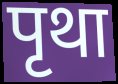
पृथा